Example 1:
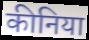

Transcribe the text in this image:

कीनिया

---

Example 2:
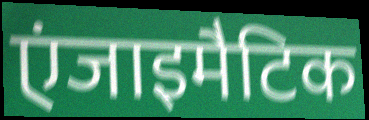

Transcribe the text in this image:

एंजाइमैटिक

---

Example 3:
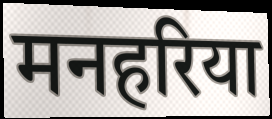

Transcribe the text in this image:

मनहरिया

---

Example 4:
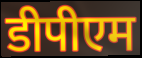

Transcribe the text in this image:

डीपीएम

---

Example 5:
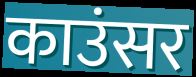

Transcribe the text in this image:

काउंसर